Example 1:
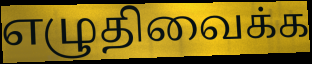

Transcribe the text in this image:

எழுதிவைக்க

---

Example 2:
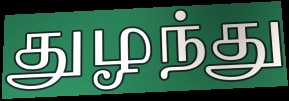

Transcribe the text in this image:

துழந்து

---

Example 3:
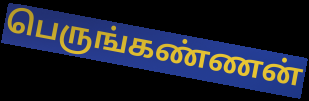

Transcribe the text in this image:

பெருங்கண்ணன்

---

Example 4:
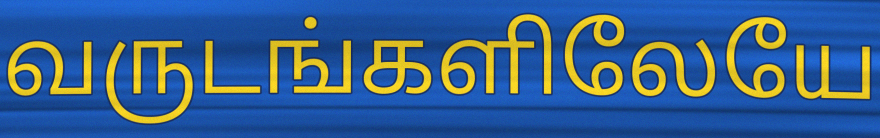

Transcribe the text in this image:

வருடங்களிலேயே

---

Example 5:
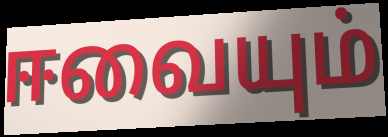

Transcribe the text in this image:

ஈவையும்